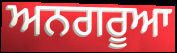
ਅਨਗਰੂਆ